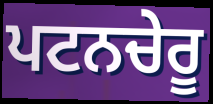
ਪਟਨਚੇਰੂ